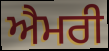
ਐਮਰੀ